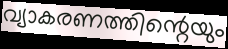
വ്യാകരണത്തിന്റെയും